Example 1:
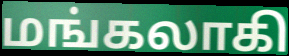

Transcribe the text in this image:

மங்கலாகி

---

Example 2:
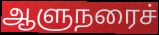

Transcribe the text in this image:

ஆளுநரைச்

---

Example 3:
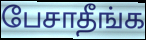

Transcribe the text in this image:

பேசாதீங்க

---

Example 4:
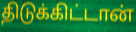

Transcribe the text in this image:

திடுக்கிட்டான்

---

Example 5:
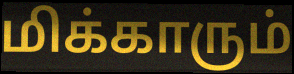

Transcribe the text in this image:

மிக்காரும்